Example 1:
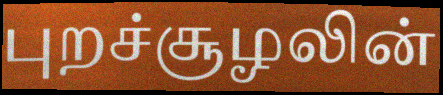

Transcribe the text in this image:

புறச்சூழலின்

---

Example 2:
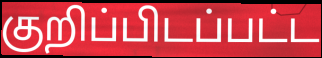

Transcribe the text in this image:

குறிப்பிடப்பட்ட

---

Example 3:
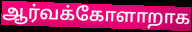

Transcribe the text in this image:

ஆர்வக்கோளாறாக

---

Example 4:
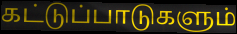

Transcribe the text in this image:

கட்டுப்பாடுகளும்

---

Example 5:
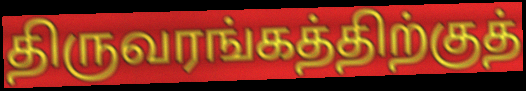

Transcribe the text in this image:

திருவரங்கத்திற்குத்